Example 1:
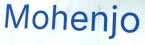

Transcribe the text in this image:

Mohenjo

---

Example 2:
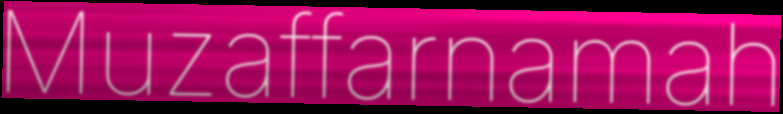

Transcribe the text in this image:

Muzaffarnamah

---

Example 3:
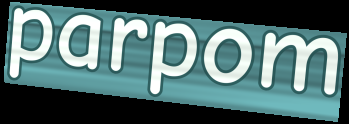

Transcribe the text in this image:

parpom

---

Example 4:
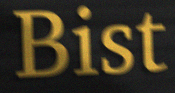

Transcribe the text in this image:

Bist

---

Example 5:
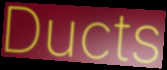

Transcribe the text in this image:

Ducts